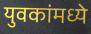
युवकांमध्ये